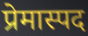
प्रेमास्पद